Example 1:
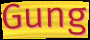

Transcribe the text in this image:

Gung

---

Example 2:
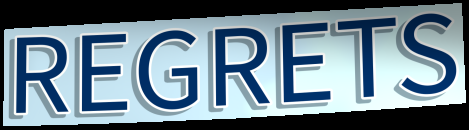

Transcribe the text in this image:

REGRETS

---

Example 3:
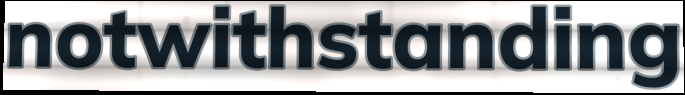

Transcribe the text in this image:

notwithstanding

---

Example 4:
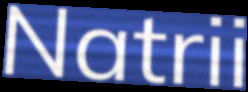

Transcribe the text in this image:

Natrii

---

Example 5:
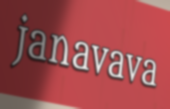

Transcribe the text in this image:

janavava